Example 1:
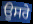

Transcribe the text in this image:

ਉਸਰੇ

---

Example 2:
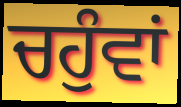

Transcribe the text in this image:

ਚਹੁੰਵਾਂ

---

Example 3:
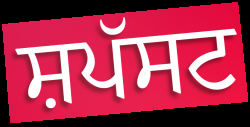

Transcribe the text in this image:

ਸ਼ਪੱਸਟ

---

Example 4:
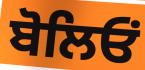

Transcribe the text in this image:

ਬੋਲਿਓਂ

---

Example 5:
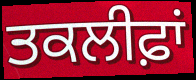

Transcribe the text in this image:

ਤਕਲੀਫ਼ਾਂ